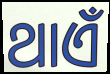
ଥାଏଁ